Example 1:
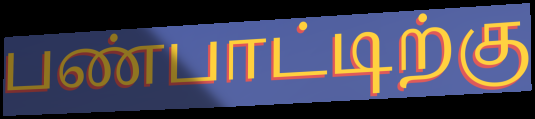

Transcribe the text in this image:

பண்பாட்டிற்கு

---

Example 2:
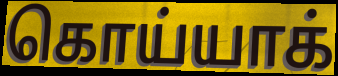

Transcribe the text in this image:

கொய்யாக்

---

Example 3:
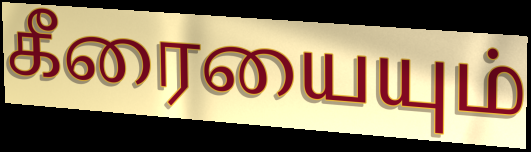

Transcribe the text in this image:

கீரையையும்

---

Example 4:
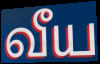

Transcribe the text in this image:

வீய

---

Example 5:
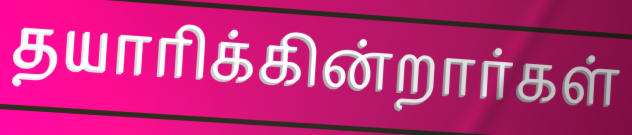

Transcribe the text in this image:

தயாரிக்கின்றார்கள்